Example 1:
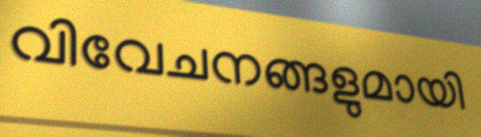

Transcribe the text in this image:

വിവേചനങ്ങളുമായി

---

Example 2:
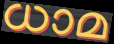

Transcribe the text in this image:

ധാമ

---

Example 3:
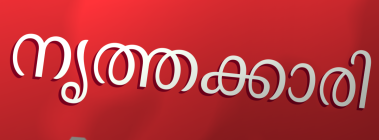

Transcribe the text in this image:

നൃത്തക്കാരി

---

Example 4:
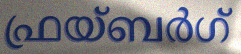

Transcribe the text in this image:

ഫ്രയ്ബർഗ്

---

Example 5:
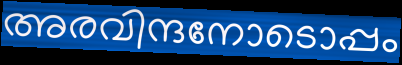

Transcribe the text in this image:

അരവിന്ദനോടൊപ്പം